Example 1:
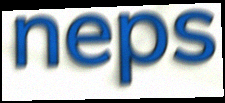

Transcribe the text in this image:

neps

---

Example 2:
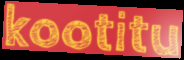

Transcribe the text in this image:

kootitu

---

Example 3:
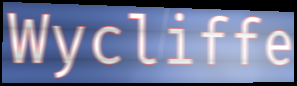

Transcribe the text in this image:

Wycliffe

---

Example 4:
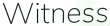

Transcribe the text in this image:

Witness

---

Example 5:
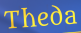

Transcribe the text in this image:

Theda